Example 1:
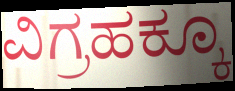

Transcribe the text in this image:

ವಿಗ್ರಹಕ್ಕೂ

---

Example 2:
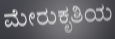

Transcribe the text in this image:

ಮೇರುಕೃತಿಯ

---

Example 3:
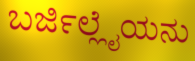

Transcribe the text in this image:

ಬರ್ಜಿಲ್ಲೈಯನು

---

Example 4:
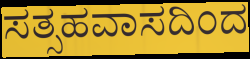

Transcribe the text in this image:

ಸತ್ಸಹವಾಸದಿಂದ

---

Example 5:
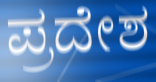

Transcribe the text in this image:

ಪ್ರದೇಶ